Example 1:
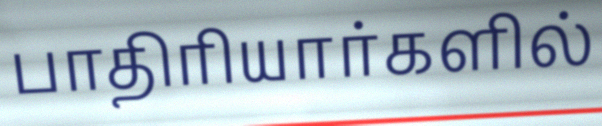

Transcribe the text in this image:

பாதிரியார்களில்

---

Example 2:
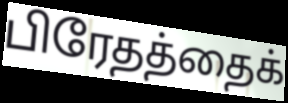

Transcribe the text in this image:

பிரேதத்தைக்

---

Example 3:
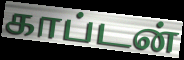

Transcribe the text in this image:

காப்டன்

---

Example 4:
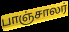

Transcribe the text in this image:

பாஞ்சாலர்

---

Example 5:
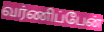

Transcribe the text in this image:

வர்ணிப்பேன்